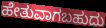
ಹೇತುವಾಗಬಹುದು